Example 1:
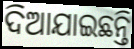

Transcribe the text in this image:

ଦିଆଯାଇଛନ୍ତି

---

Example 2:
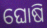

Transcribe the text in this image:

ଘୋଷି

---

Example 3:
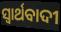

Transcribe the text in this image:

ସ୍ୱାର୍ଥବାଦୀ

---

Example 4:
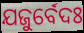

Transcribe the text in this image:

ଯଜୁର୍ବେଦଃ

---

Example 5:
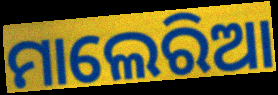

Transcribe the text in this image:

ମାଲେରିଆ